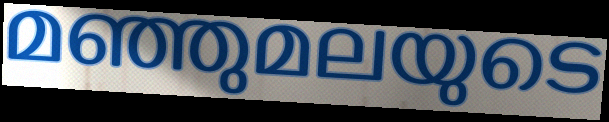
മഞ്ഞുമലയുടെ